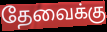
தேவைக்கு